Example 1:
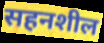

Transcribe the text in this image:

सहनशील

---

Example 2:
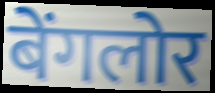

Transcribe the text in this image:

बेंगलोर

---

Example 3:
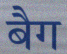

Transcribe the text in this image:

बैग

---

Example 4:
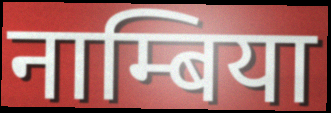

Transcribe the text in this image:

नाम्बिया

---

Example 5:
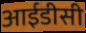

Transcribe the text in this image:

आईडीसी